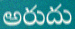
అరుదు